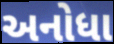
અનોધા